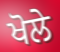
ਖੋਲੇ